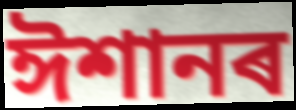
ঈশানৰ